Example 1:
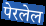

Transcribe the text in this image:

पेरलेल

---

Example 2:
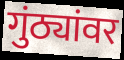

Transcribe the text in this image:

गुंठ्यांवर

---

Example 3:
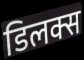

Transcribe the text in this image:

डिलक्स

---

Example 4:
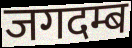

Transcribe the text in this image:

जगदम्ब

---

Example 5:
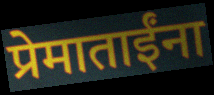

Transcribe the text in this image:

प्रेमाताईंना